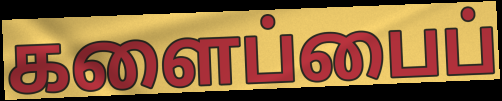
களைப்பைப்